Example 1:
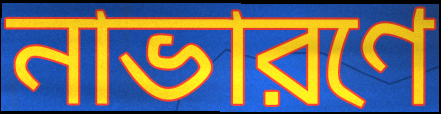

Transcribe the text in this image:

নাভারণে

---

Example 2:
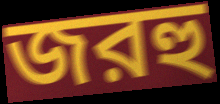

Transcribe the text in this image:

জরহু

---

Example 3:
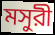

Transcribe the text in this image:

মসুরী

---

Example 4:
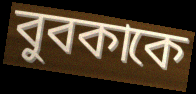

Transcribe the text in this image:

বুবকাকে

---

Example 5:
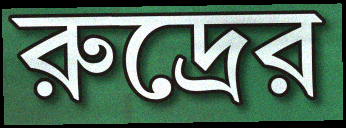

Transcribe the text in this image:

রুদ্রের